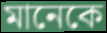
মানেকে